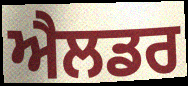
ਐਲਡਰ